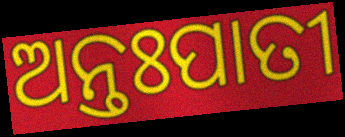
ଅନ୍ତଃପାତୀ